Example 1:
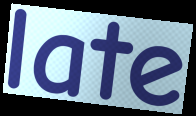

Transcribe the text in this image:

late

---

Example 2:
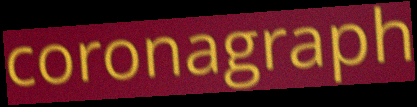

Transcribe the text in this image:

coronagraph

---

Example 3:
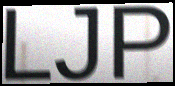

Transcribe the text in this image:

LJP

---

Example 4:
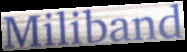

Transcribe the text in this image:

Miliband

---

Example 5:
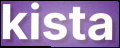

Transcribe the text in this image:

kista